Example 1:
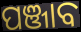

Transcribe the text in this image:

ପଞ୍ଜାବ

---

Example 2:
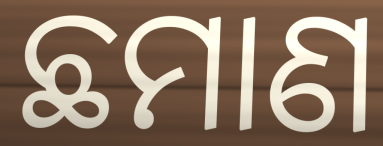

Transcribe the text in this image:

ଛମାଣ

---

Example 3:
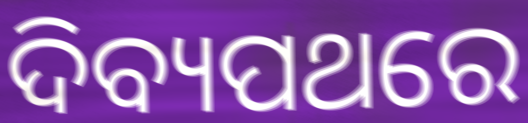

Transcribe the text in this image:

ଦିବ୍ୟପଥରେ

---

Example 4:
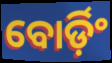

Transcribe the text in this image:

ବୋର୍ଡ଼ିଂ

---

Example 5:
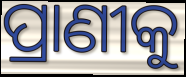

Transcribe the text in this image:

ପ୍ରାଣୀକୁ